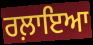
ਰਲ਼ਾਇਆ